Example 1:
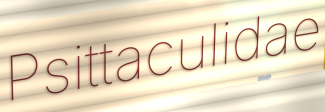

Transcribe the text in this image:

Psittaculidae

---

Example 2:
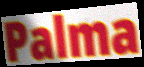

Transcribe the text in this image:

Palma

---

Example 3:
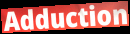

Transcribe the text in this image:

Adduction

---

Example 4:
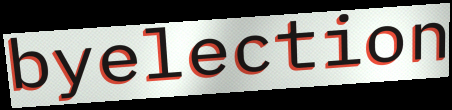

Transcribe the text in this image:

byelection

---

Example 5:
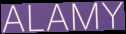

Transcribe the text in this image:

ALAMY